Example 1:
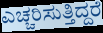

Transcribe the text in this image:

ಎಚ್ಚರಿಸುತ್ತಿದ್ದರೆ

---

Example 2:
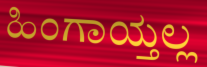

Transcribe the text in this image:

ಹಿಂಗಾಯ್ತಲ್ಲ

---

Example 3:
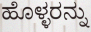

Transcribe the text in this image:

ಹೊಳ್ಳರನ್ನು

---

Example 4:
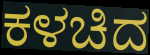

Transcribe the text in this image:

ಕಳಚಿದ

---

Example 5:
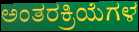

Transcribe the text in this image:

ಅಂತರಕ್ರಿಯೆಗಳ